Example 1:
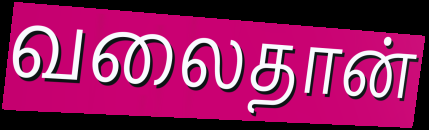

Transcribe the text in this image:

வலைதான்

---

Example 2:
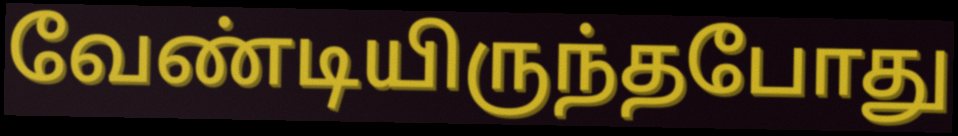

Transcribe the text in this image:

வேண்டியிருந்தபோது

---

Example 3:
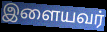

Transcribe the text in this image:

இளையவர்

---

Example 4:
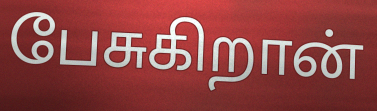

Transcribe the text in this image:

பேசுகிறான்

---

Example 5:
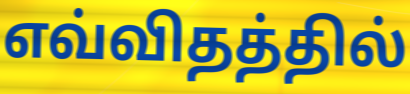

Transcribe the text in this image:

எவ்விதத்தில்